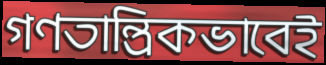
গণতান্ত্রিকভাবেই